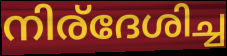
നിര്ദേശിച്ച